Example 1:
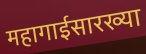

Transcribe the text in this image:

महागाईसारख्या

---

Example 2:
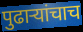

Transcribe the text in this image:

पुढाऱ्यांचाच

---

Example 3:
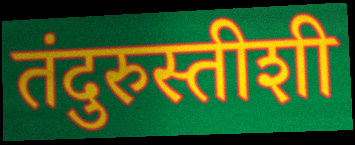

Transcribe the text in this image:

तंदुरुस्तीशी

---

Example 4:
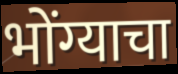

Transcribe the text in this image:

भोंग्याचा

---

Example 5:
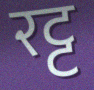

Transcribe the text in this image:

रट्ट